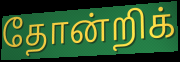
தோன்றிக்